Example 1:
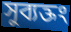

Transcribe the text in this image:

সুব্যক্তং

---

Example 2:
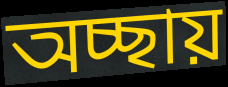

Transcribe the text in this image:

অচ্ছায়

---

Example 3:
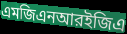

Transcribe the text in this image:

এমজিএনআরইজিএ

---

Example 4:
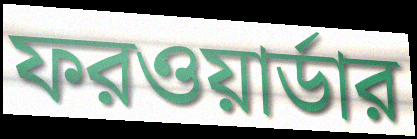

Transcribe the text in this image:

ফরওয়ার্ডার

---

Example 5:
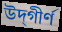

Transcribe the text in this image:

উদ্‌গীর্ণ